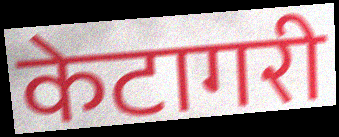
केटागरी